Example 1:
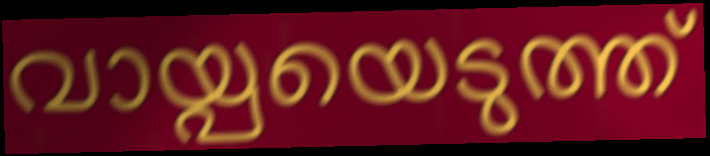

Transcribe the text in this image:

വായ്പയെടുത്ത്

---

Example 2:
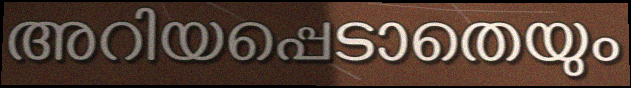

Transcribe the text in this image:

അറിയപ്പെടാതെയും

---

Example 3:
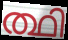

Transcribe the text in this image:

ത്ഥി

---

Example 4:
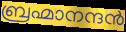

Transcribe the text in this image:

ബ്രഹ്മാനന്ദൻ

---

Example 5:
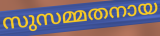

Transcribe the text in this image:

സുസമ്മതനായ